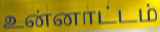
உன்னாட்டம்